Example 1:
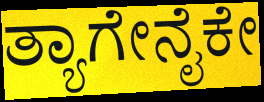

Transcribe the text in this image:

ತ್ಯಾಗೇನೈಕೇ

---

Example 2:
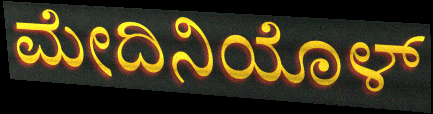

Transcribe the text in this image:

ಮೇದಿನಿಯೊಳ್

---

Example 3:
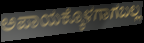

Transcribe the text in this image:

ಅಪಾಯಕ್ಕೊಳಗಾಗಬಲ್ಲ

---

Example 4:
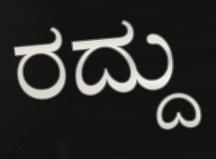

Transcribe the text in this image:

ರದ್ದು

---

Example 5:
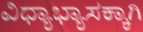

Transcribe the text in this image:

ವಿಧ್ಯಾಭ್ಯಾಸಕ್ಕಾಗಿ